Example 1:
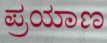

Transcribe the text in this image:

ಪ್ರಯಾಣ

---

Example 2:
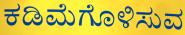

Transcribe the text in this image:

ಕಡಿಮೆಗೊಳಿಸುವ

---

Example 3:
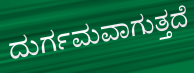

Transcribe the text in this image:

ದುರ್ಗಮವಾಗುತ್ತದೆ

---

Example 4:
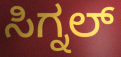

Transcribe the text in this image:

ಸಿಗ್ನಲ್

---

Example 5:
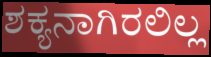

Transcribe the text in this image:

ಶಕ್ಯನಾಗಿರಲಿಲ್ಲ